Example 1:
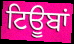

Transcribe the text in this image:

ਟਿਊਬਾਂ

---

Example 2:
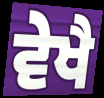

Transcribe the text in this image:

ਵੇਖੈ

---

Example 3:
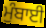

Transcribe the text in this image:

ਮੁੰਬਾਈ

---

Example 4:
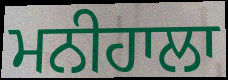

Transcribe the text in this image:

ਮਨੀਹਾਲਾ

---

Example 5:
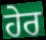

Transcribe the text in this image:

ਹੇਰ